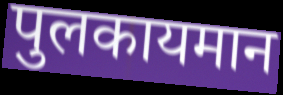
पुलकायमान